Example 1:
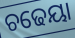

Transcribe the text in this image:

ଚଢେୟା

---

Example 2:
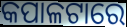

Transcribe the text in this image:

କପାଳଟାରେ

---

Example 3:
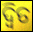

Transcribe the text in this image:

ଦ୍ବିତ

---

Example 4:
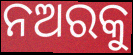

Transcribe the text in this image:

ନଅରକୁ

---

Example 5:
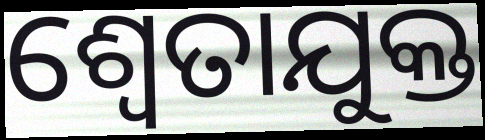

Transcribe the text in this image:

ଶ୍ଵେତାଯୁକ୍ତ